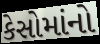
કેસોમાંનો